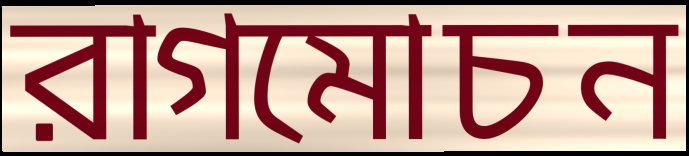
রাগমোচন